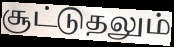
சூட்டுதலும்